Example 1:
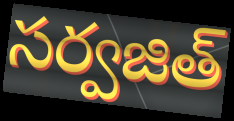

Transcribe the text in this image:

సర్వజిత్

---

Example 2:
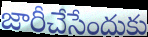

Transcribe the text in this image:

జారీచేసేందుకు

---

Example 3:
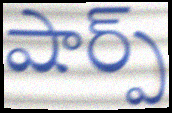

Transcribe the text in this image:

షార్ప్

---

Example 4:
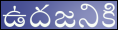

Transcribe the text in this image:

ఉదజనికి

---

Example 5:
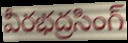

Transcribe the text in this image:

వీరభద్రసింగ్